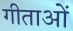
गीताओं